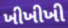
ખીખીખી